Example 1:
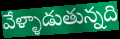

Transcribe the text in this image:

వేళ్ళాడుతున్నది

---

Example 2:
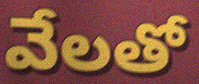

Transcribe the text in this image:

వేలతో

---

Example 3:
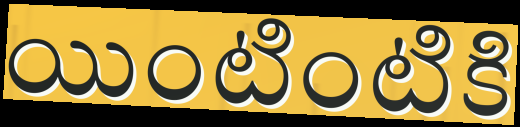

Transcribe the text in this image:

యింటింటికి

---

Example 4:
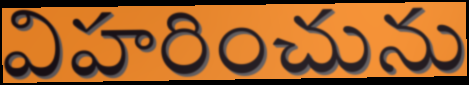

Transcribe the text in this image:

విహరించును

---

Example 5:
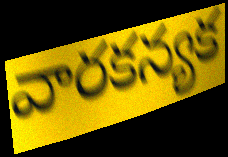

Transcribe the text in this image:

వారకన్యక